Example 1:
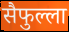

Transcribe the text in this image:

सैफुल्ला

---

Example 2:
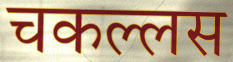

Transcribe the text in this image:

चकल्लस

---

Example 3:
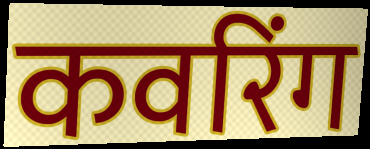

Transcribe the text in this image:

कवरिंग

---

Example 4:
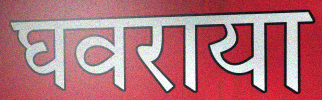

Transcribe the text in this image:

घवराया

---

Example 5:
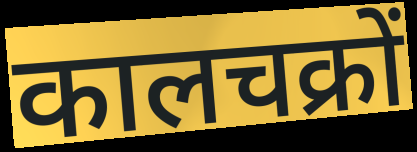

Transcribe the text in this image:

कालचक्रों